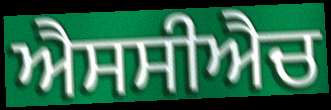
ਐਸਸੀਐਚ